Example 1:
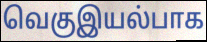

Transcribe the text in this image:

வெகுஇயல்பாக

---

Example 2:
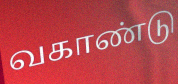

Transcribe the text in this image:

வகாண்டு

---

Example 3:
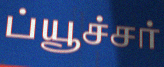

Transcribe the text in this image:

ப்யூச்சர்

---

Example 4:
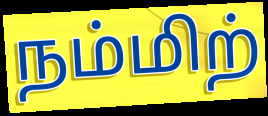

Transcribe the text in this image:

நம்மிற்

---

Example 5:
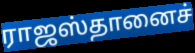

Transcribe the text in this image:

ராஜஸ்தானைச்